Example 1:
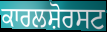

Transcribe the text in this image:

ਕਾਰਲਸ਼ੋਰਸਟ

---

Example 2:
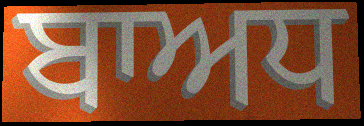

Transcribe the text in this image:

ਬਾਅਧ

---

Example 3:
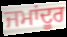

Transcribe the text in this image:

ਜਮਾਂਦੂਰ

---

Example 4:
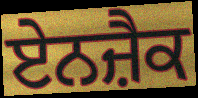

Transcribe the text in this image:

ਏਨਜ਼ੈਕ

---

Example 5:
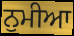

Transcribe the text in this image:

ਨੁਮੀਆ